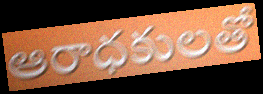
ఆరాధకులతో